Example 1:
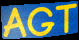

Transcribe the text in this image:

AGT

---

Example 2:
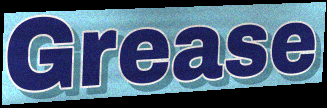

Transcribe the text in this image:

Grease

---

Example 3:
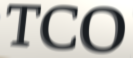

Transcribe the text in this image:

TCO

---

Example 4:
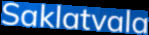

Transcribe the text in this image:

Saklatvala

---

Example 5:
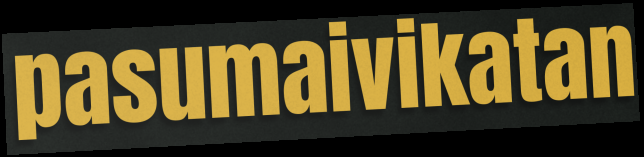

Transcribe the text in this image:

pasumaivikatan